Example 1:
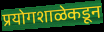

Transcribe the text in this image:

प्रयोगशाळेकडून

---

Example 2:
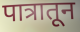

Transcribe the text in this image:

पात्रातून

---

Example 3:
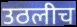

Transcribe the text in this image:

उठलीच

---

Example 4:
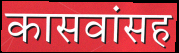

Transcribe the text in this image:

कासवांसह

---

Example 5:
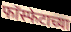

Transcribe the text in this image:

फॉस्फेटाच्या